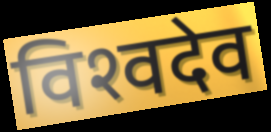
विश्वदेव